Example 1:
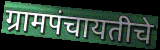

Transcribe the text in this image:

ग्रामपंचायतीचे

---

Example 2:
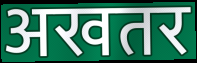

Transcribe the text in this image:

अखतर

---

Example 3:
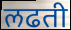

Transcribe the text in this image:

लढती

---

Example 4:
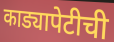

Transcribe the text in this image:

काड्यापेटीची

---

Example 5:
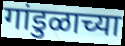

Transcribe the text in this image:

गांडुळाच्या